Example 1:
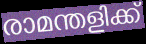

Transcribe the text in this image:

രാമന്തളിക്ക്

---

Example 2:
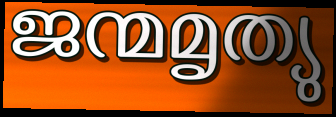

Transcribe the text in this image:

ജന്മമൃത്യു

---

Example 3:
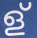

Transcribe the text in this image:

ള്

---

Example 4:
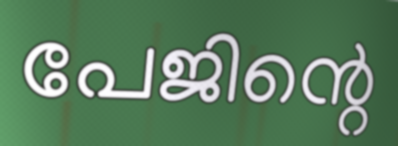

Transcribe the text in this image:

പേജിന്റെ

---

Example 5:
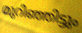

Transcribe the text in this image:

മുറിഞ്ഞിട്ടും